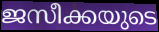
ജസീക്കയുടെ